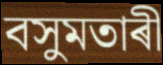
বসুমতাৰী